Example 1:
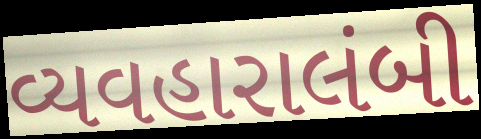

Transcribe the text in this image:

વ્યવહારાલંબી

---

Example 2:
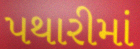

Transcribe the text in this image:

પથારીમાં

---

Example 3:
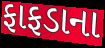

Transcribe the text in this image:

ફાફડાના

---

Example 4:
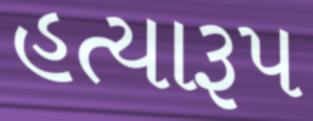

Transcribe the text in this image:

હત્યારૂપ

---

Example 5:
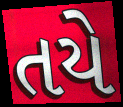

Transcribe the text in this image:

તયે